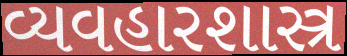
વ્યવહારશાસ્ત્ર